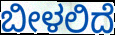
ಬೀಳಲಿದೆ